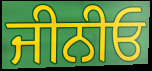
ਜੀਨੀਓ